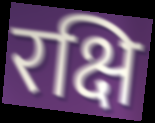
रक्षि